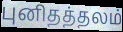
புனிதத்தலம்